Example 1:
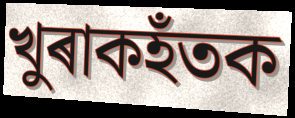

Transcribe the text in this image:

খুৰাকহঁতক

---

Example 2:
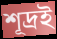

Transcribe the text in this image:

শূদ্ৰই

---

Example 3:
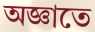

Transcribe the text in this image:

অজ্ঞাতে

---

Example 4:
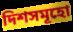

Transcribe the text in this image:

দিশসমূহো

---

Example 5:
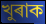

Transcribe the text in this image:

খুৰাক